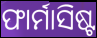
ଫାର୍ମାସିଷ୍ଟ